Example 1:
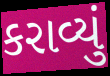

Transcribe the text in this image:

કરાવ્યું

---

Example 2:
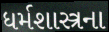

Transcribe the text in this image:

ધર્મશાસ્ત્રના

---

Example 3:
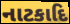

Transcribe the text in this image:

નાટકાદિ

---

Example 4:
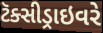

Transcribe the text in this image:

ટૅક્સીડ્રાઇવરે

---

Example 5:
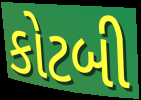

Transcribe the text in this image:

કોટબી